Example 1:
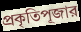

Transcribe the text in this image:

প্রকৃতিপূজার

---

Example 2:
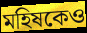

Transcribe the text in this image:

মহিষকেও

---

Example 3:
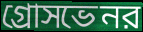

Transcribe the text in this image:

গ্রোসভেনর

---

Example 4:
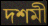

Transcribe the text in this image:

দশমী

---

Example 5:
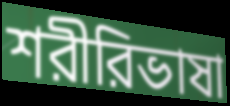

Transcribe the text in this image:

শরীরিভাষা